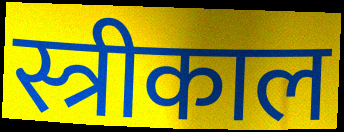
स्त्रीकाल